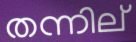
തന്നില്